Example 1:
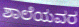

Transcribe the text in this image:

ಶಾಲೆಯವರ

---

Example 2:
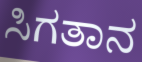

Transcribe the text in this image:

ಸಿಗತಾನ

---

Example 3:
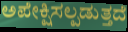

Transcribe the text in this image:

ಅಪೇಕ್ಷಿಸಲ್ಪಡುತ್ತದೆ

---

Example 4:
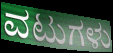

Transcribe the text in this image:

ವಟುಗಳು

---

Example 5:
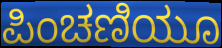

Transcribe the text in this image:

ಪಿಂಚಣಿಯೂ